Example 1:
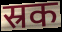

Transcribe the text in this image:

स्रक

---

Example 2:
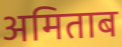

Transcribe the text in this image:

अमिताब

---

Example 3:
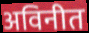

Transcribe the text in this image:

अविनीत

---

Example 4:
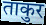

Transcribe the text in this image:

ताकुर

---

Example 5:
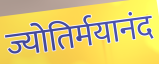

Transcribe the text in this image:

ज्योतिर्मयानंद